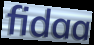
fidaa